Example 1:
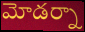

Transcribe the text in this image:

మోడర్నా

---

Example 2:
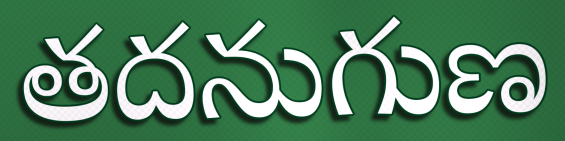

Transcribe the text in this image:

తదనుగుణ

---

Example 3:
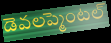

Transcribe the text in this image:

డెవలప్మెంటల్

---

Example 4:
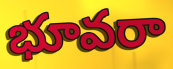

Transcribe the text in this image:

భూవరా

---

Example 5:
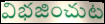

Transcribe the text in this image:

విభజించుట